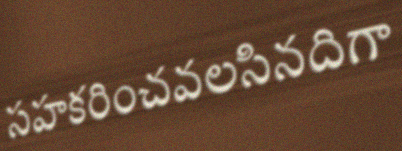
సహకరించవలసినదిగా